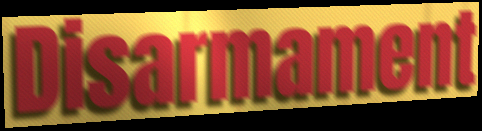
Disarmament